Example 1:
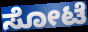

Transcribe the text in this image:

ಸೋಟೆ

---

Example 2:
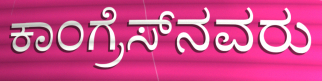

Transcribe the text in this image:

ಕಾಂಗ್ರೆಸ್‌ನವರು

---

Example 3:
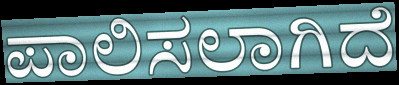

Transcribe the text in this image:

ಪಾಲಿಸಲಾಗಿದೆ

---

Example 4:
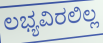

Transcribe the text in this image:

ಲಭ್ಯವಿರಲಿಲ್ಲ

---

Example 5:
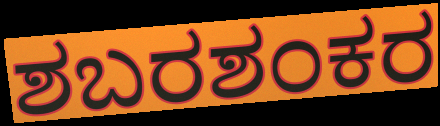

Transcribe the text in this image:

ಶಬರಶಂಕರ